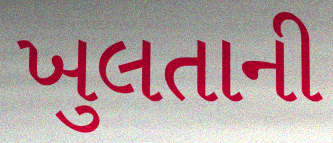
ખુલતાની